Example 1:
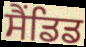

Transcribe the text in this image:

ਸੈਂਡਿਡ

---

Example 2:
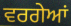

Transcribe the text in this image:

ਵਰਗੇਆਂ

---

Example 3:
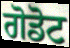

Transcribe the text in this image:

ਗੋਡੋਟ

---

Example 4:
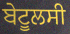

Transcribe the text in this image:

ਬੇਟੂਲਸੀ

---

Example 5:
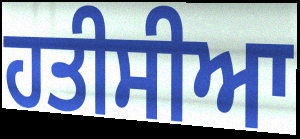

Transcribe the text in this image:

ਹਤੀਸੀਆ